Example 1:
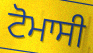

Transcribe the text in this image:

ਟੋਮਾਸੀ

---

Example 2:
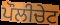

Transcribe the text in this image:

ਪੌਲੀਚੇਟ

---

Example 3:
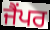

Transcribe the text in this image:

ਜੈਂਪਰ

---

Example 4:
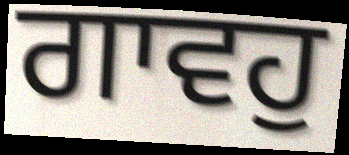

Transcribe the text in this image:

ਗਾਵਹੁ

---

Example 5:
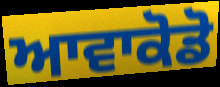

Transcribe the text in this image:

ਆਵਾਕੋਡੋ